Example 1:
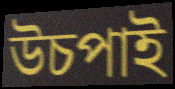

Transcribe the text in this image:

উচপাই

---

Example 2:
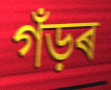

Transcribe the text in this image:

গঁড়ৰ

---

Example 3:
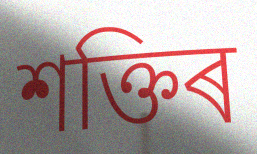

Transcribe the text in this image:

শক্তিৰ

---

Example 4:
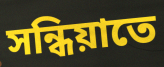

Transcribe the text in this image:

সন্ধিয়াতে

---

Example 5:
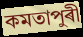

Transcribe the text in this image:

কমতাপুৰী